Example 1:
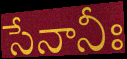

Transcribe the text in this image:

సేనానీః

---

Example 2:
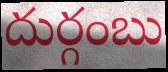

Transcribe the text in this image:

దుర్గంబు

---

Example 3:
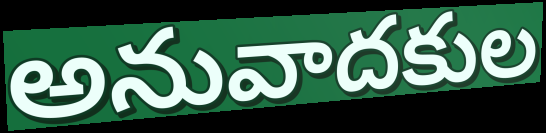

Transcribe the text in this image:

అనువాదకుల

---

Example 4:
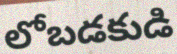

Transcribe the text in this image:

లోబడకుడి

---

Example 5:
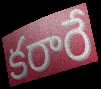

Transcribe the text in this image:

కరారే